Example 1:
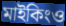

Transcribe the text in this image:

মাইকিংও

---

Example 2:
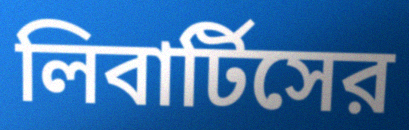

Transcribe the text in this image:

লিবার্টিসের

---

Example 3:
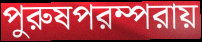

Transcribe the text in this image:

পুরুষপরম্পরায়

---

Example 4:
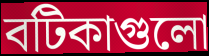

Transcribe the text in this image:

বটিকাগুলো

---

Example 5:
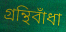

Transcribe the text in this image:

গ্রন্থিবাঁধা